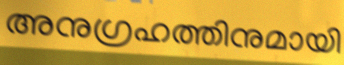
അനുഗ്രഹത്തിനുമായി